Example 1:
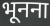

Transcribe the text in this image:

भूनना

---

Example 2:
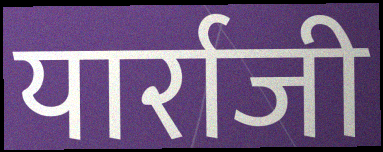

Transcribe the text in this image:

यार्राजी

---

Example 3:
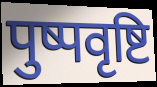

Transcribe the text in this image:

पुष्पवृष्टि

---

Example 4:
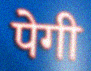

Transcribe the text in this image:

पेगी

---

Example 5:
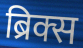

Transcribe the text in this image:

ब्रिक्‍स